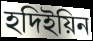
হদিইয়িন